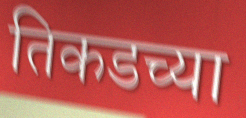
तिकडच्या